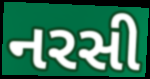
નરસી